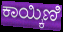
ಕಾಯ್ಕಿಣಿ